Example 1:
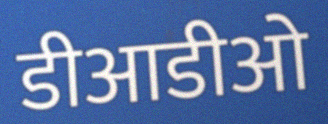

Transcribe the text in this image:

डीआडीओ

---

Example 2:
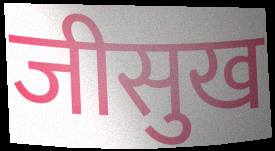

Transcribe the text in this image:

जीसुख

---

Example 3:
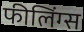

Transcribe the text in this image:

फीलिंग्स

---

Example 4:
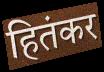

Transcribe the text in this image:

हितंकर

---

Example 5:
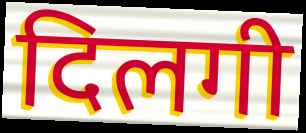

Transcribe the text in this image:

दिलगी